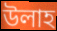
উলাহ